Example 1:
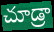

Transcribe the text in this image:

చూడ్రా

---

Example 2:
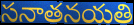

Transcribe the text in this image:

సనాతనయతి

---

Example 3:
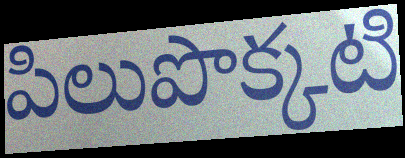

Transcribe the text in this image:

పిలుపొక్కటి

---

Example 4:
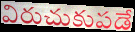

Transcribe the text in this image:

విరుచుకుపడే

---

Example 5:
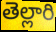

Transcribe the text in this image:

తెల్లారి